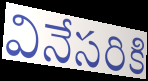
వినేసరికి